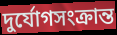
দুর্যোগসংক্রান্ত